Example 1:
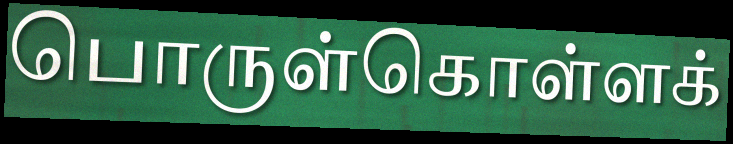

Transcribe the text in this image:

பொருள்கொள்ளக்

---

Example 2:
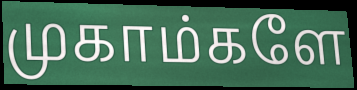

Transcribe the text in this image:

முகாம்களே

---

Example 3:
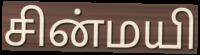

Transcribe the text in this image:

சின்மயி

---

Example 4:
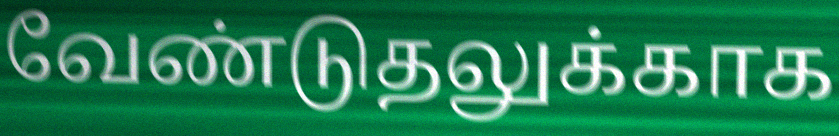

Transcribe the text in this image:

வேண்டுதலுக்காக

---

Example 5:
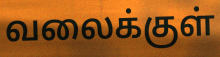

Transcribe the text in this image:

வலைக்குள்